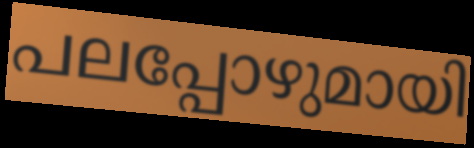
പലപ്പോഴുമായി